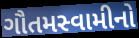
ગૌતમસ્વામીનો